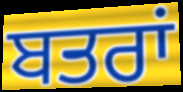
ਬਤਰਾਂ